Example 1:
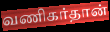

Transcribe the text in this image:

வணிகர்தான்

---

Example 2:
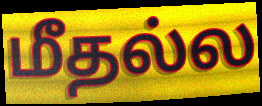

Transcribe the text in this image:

மீதல்ல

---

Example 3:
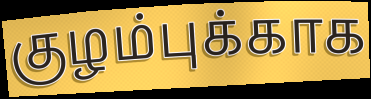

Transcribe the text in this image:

குழம்புக்காக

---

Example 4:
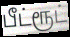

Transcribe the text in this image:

பீட்ரூட்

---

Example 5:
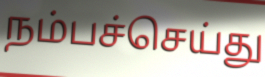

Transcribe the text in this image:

நம்பச்செய்து